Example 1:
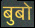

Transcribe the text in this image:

बुबो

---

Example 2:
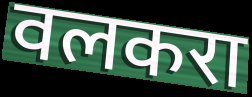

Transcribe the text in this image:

वलकरा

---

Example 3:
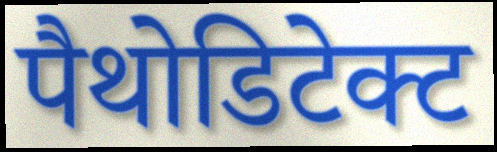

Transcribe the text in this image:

पैथोडिटेक्ट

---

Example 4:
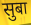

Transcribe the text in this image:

सुबा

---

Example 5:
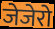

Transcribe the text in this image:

जेजेरो